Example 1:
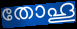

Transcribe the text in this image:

തോഹൂ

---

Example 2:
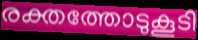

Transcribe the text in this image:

രക്തത്തോടുകൂടി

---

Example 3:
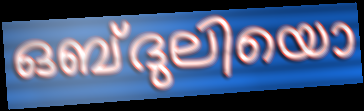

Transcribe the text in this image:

ഒബ്ദുലിയൊ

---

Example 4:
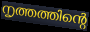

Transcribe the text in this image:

നൃത്തത്തിന്റെ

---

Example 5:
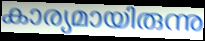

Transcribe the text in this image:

കാര്യമായിരുന്നു